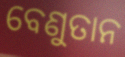
ବେଣୁତାନ